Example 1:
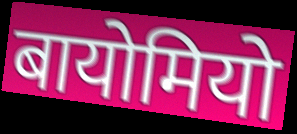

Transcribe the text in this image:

बायोमियो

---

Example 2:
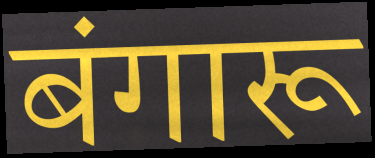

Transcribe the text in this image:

बंगारू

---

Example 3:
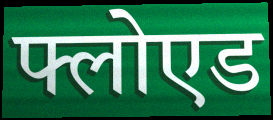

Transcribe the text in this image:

फ्लोएड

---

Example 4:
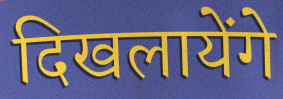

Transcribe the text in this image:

दिखलायेंगे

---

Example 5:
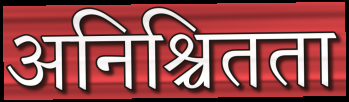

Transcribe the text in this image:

अनिश्चितता